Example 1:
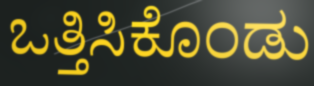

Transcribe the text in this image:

ಒತ್ತಿಸಿಕೊಂಡು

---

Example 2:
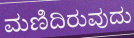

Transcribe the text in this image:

ಮಣಿದಿರುವುದು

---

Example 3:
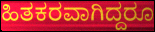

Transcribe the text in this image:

ಹಿತಕರವಾಗಿದ್ದರೂ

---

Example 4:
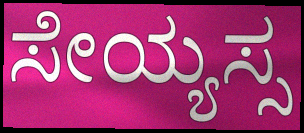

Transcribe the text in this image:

ಸೇಯ್ಯಸ್ಸ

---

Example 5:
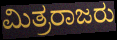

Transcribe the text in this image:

ಮಿತ್ರರಾಜರು